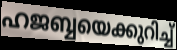
ഹജബ്ബയെക്കുറിച്ച്